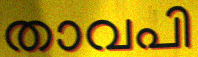
താവപി